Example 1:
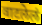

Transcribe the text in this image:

वाटलेलं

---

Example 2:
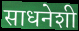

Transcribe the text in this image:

साधनेशी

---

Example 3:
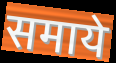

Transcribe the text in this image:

समाये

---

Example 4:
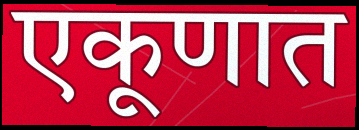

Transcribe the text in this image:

एकूणात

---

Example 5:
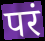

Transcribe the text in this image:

परं